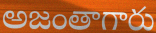
అజంతాగారు